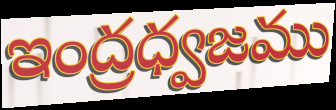
ఇంద్రధ్వజము